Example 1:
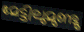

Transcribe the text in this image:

മേട്ടിലുമുണ്ടു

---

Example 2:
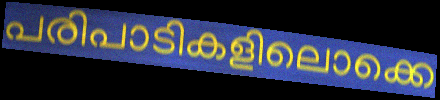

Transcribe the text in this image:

പരിപാടികളിലൊക്കെ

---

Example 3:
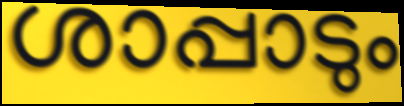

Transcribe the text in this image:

ശാപ്പാടും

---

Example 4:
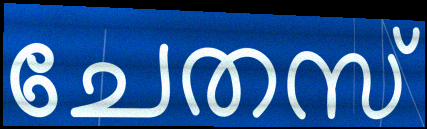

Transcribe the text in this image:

ചേതസ്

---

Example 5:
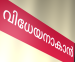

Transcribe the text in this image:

വിധേയനാകാൻ